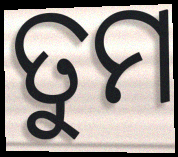
ତୁମ